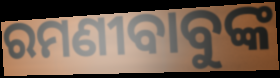
ରମଣୀବାବୁଙ୍କ